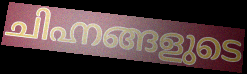
ചിഹ്നങ്ങളുടെ